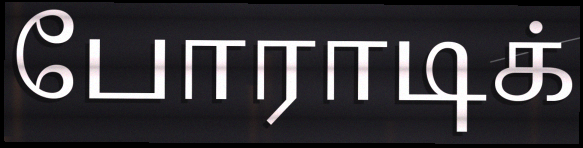
போராடிக்